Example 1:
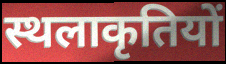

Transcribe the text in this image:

स्थलाकृतियों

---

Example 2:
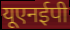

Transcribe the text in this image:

यूएनईपी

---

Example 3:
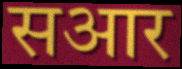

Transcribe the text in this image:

सआर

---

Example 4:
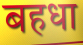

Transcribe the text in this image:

बहधा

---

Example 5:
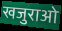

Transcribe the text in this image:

खजुराओ